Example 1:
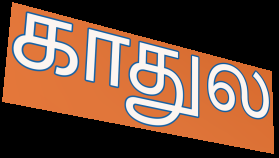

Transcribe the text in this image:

காதுல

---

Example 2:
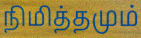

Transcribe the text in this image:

நிமித்தமும்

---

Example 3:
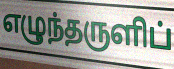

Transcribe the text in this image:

எழுந்தருளிப்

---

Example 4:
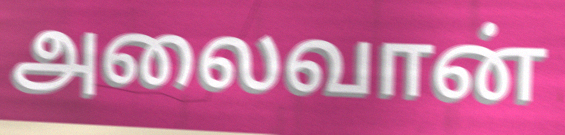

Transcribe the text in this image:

அலைவான்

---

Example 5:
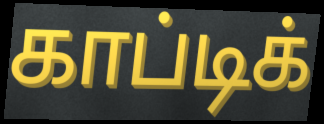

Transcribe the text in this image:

காப்டிக்